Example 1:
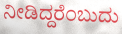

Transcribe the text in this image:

ನೀಡಿದ್ದರೆಂಬುದು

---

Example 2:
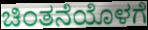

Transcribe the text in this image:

ಚಿಂತನೆಯೊಳಗೆ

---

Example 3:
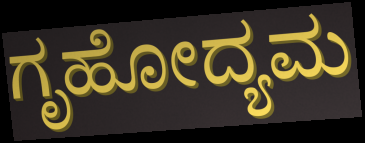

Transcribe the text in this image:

ಗೃಹೋದ್ಯಮ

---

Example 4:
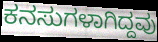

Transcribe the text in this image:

ಕನಸುಗಳಾಗಿದ್ದವು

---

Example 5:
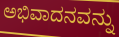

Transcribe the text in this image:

ಅಭಿವಾದನವನ್ನು